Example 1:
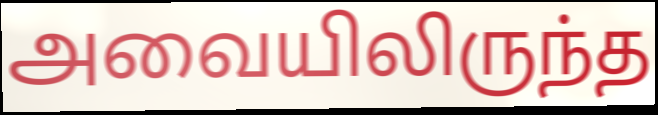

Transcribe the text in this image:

அவையிலிருந்த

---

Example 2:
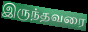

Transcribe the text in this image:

இருந்தவரை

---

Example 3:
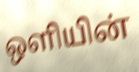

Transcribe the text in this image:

ஒளியின்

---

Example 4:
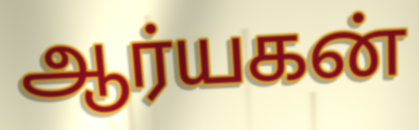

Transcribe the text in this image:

ஆர்யகன்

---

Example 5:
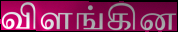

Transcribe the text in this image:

விளங்கின